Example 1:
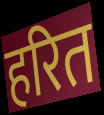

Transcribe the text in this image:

हरित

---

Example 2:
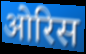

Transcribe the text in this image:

ओरिस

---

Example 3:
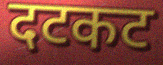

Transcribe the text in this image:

दटकट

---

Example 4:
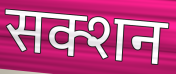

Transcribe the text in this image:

सक्शन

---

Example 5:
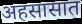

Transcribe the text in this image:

अहसासात